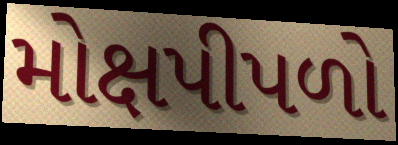
મોક્ષપીપળો